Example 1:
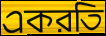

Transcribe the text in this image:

একরতি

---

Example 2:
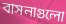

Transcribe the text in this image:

বাসনাগুলো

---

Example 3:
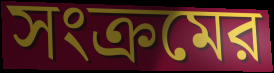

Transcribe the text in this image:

সংক্রমের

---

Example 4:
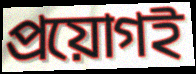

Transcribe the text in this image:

প্রয়োগই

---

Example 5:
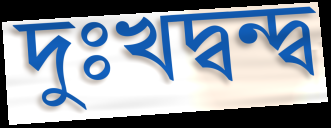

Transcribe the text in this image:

দুঃখদ্বন্দ্ব